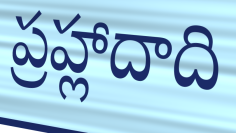
ప్రహ్లాదాది